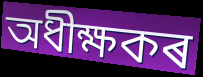
অধীক্ষকৰ